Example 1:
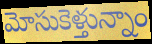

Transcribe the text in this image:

మోసుకెళ్తున్నాం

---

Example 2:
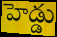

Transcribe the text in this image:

హెడ్డు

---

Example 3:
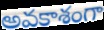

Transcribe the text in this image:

అవకాశంగా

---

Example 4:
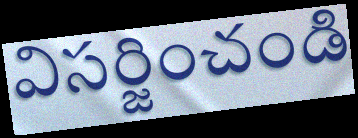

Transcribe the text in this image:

విసర్జించండి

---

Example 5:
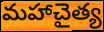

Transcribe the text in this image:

మహాచైత్య